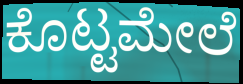
ಕೊಟ್ಟಮೇಲೆ